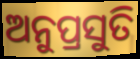
ଅନୁପ୍ରସୁତି